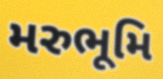
મરુભૂમિ